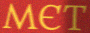
MET